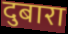
दुबारा